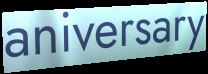
aniversary